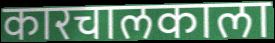
कारचालकाला